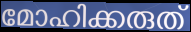
മോഹിക്കരുത്